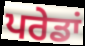
ਪਰੇਡਾਂ